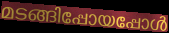
മടങ്ങിപ്പോയപ്പോൾ